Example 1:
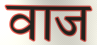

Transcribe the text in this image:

वाज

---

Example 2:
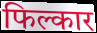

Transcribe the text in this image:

फिल्कार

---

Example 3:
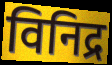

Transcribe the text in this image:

विनिद्र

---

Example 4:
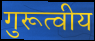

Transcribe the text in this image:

गुरूत्वीय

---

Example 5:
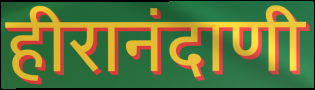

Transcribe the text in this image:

हीरानंदाणी